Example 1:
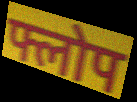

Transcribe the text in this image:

फ्लोप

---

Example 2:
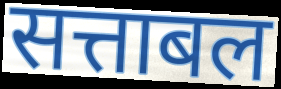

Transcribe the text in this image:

सत्ताबल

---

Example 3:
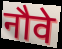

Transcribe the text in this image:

नौवे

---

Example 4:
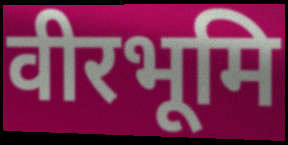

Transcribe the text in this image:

वीरभूमि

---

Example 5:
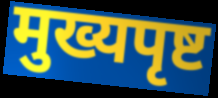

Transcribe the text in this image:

मुख्यपृष्ट